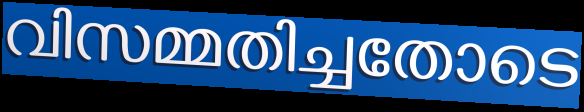
വിസമ്മതിച്ചതോടെ